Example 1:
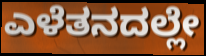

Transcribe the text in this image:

ಎಳೆತನದಲ್ಲೇ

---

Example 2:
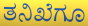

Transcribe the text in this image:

ತನಿಖೆಗೂ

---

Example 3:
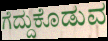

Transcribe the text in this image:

ಗೆದ್ದುಕೊಡುವ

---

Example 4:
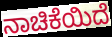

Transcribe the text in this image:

ನಾಚಿಕೆಯಿದೆ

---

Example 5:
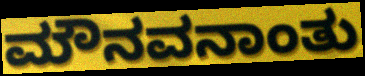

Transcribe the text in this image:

ಮೌನವನಾಂತು